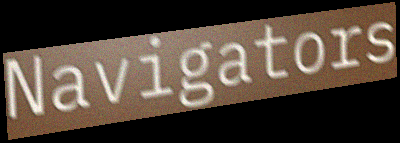
Navigators